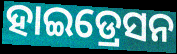
ହାଇଡ୍ରେସନ